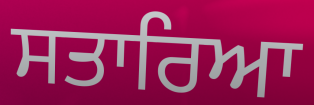
ਸਤਾਰਿਆ